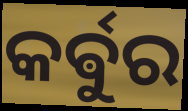
କର୍ଵୁର